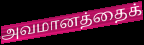
அவமானத்தைக்